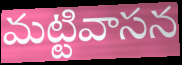
మట్టివాసన